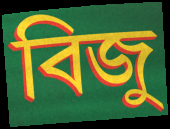
বিজু